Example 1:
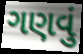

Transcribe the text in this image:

ગણવું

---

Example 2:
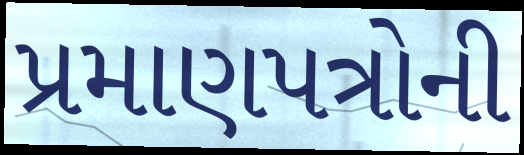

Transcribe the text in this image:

પ્રમાણપત્રોની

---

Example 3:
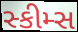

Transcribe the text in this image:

સ્કીમ્સ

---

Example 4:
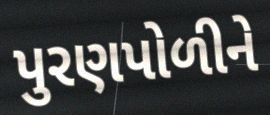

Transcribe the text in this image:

પુરણપોળીને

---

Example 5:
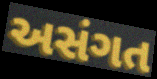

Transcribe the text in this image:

અસંગત